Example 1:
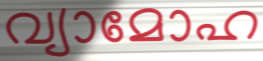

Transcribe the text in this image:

വ്യാമോഹ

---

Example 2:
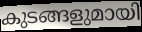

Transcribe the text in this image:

കുടങ്ങളുമായി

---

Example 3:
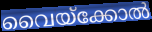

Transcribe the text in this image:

വൈയ്ക്കോൽ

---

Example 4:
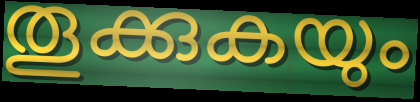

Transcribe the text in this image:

തൂക്കുകയും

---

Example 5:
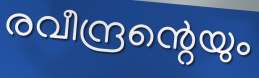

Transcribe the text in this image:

രവീന്ദ്രന്റെയും